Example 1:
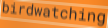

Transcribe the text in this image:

birdwatching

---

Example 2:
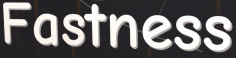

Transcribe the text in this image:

Fastness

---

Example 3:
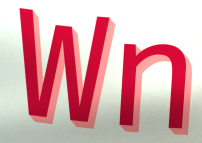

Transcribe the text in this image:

Wn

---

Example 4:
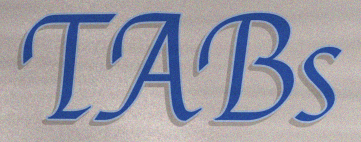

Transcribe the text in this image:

TABs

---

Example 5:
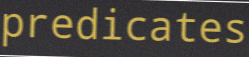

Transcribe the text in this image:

predicates